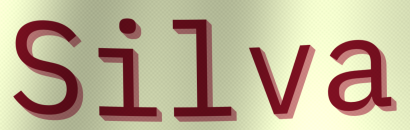
Silva